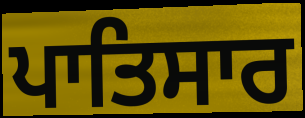
ਪਾਤਿਸਾਰ